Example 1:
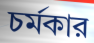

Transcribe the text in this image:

চর্মকার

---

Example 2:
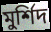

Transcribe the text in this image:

মুর্শিদ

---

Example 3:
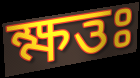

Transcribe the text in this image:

ক্ষত্তঃ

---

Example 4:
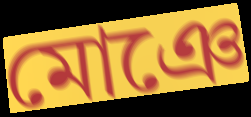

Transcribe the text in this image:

মোঞে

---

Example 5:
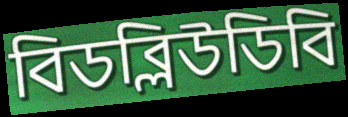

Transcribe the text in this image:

বিডব্লিউডিবি